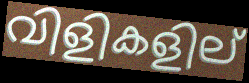
വിളികളില്